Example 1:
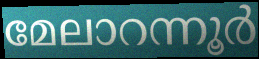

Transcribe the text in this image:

മേലാറന്നൂർ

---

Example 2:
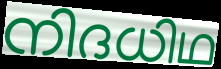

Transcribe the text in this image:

നിദധിഥ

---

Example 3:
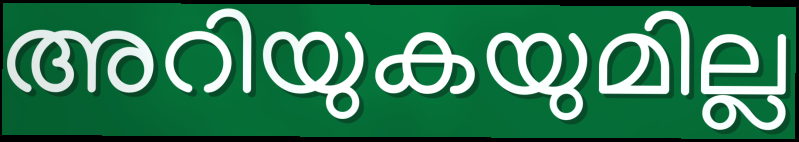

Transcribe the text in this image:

അറിയുകയുമില്ല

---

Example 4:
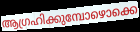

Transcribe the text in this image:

ആഗ്രഹിക്കുമ്പോഴൊക്കെ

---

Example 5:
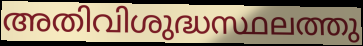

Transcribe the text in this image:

അതിവിശുദ്ധസ്ഥലത്തു